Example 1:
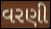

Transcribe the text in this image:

વરણી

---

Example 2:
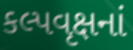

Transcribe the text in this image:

કલ્પવૃક્ષનાં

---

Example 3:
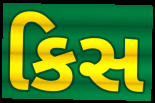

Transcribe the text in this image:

કિસ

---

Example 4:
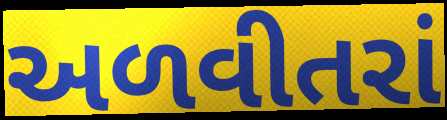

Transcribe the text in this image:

અળવીતરાં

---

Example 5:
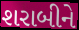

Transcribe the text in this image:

શરાબીને